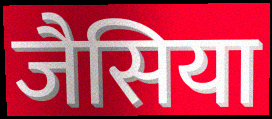
जैसिया